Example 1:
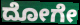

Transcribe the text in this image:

ದೋಗೇ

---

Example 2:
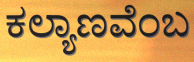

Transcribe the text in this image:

ಕಲ್ಯಾಣವೆಂಬ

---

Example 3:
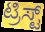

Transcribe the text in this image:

ಟ್ರಿಸ್ಟ್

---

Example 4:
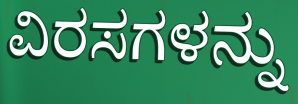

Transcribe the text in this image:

ವಿರಸಗಳನ್ನು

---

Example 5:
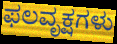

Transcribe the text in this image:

ಫಲವೃಕ್ಷಗಳು